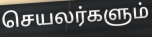
செயலர்களும்